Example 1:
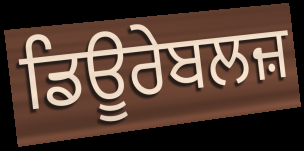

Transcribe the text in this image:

ਡਿਊਰੇਬਲਜ਼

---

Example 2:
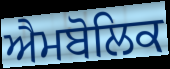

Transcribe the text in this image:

ਐਮਬੋਲਿਕ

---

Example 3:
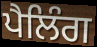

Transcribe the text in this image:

ਪੈਲਿੰਗ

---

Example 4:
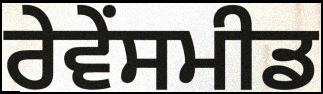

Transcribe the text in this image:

ਰੇਵੇਂਸਮੀਡ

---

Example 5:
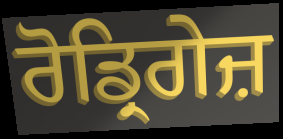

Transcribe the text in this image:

ਰੋਡ੍ਰਿਗੇਜ਼